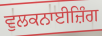
ਵੁਲਕਨਾਈਜ਼ਿੰਗ